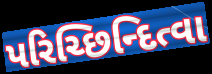
પરિચ્છિન્દિત્વા